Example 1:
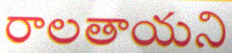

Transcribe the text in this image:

రాలతాయని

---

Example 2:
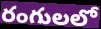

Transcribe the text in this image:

రంగులలో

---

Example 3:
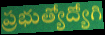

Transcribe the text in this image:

ప్రభుత్యోద్యోగి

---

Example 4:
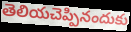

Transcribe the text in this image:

తెలియచెప్పినందుకు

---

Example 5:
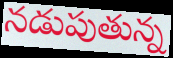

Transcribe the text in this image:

నడుపుతున్న